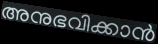
അനുഭവിക്കാൻ